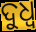
ଦୁଧ୍ଵ